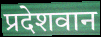
प्रदेशवान